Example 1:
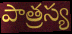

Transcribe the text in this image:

పాత్రస్య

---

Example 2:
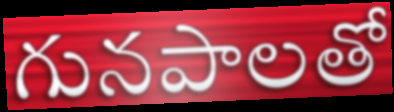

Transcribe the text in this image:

గునపాలతో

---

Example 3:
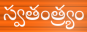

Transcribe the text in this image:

స్వతంత్ర్యం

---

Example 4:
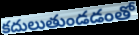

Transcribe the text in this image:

కదులుతుండడంతో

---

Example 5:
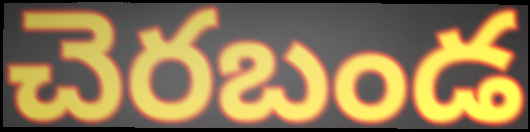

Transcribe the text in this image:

చెరబండ